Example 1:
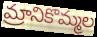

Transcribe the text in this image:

మ్రానికొమ్మల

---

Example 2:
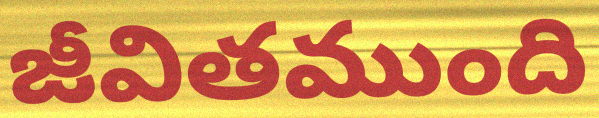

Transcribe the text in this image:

జీవితముంది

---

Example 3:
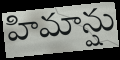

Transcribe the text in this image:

హిమాన్షు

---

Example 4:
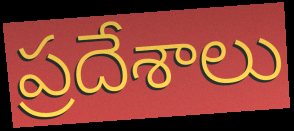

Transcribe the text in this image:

ప్రదేశాలు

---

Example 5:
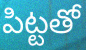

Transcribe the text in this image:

పిట్టతో